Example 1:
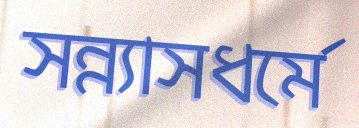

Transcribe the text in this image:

সন্ন্যাসধর্মে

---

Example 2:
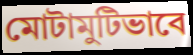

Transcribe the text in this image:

মোটামুটিভাবে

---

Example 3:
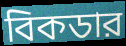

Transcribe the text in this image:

বিকডার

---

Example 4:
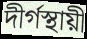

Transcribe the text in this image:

দীর্গস্থায়ী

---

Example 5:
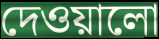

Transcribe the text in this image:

দেওয়ালো